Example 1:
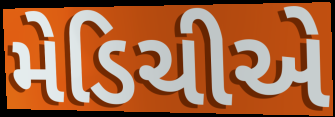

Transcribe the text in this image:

મેડિચીએ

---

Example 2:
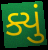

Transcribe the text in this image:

ક્યું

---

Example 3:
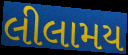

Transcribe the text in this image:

લીલામય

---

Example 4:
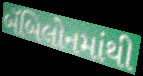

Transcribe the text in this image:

બૅબિલોનમાંથી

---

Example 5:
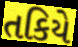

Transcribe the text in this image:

તકિયે